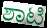
ಶಾಟಿ